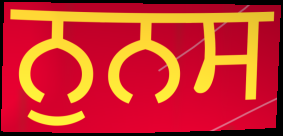
ਨੁਨਸ